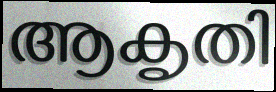
ആകൃതി